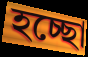
হচ্ছো